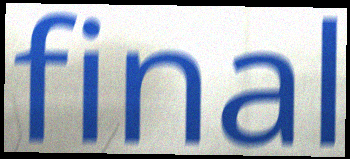
final